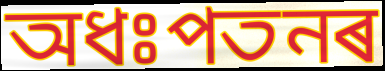
অধঃপতনৰ